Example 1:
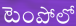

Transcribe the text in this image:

టెంపోలో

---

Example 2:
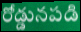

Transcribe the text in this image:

రోడ్డునపడి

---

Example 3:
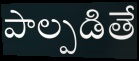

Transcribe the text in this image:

పాల్పడితే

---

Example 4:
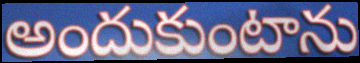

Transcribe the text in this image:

అందుకుంటాను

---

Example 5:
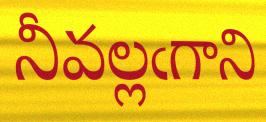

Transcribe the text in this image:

నీవల్లఁగాని